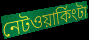
নেটওয়ার্কিংটা